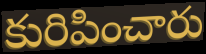
కురిపించారు